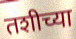
तशीच्या